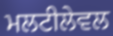
ਮਲਟੀਲੇਵਲ